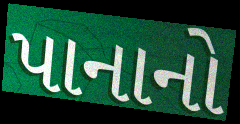
પાનાનો